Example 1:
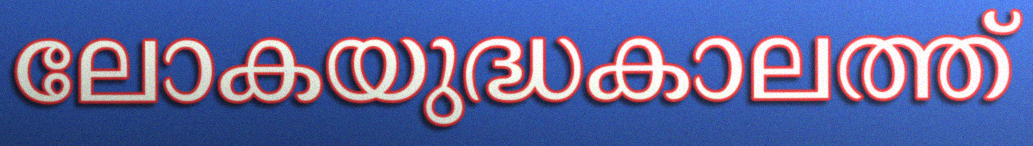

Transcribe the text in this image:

ലോകയുദ്ധകാലത്ത്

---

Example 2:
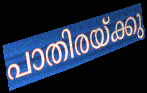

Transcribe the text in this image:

പാതിരയ്ക്കു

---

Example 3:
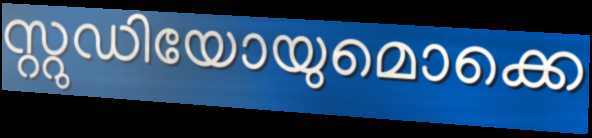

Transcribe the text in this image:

സ്റ്റുഡിയോയുമൊക്കെ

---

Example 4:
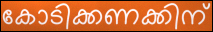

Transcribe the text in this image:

കോടിക്കണക്കിന്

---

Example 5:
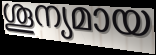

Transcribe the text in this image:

ശൂന്യമായ